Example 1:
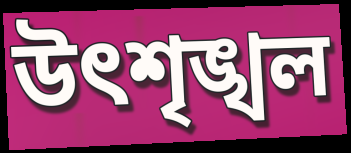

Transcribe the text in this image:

উৎশৃঙ্খল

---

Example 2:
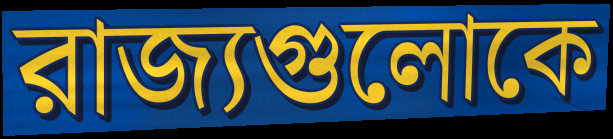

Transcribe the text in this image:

রাজ্যগুলোকে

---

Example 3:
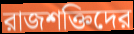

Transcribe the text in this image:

রাজশক্তিদের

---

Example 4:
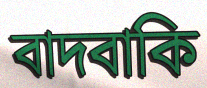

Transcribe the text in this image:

বাদবাকি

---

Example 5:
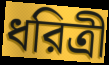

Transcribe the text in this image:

ধরিত্রী